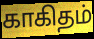
காகிதம்